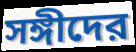
সঙ্গীদের